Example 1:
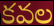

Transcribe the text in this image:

కవల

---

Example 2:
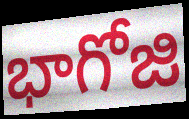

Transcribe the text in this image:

భాగోజి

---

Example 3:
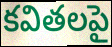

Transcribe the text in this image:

కవితలపై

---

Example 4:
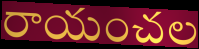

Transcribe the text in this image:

రాయంచల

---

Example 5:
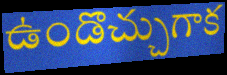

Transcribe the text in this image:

ఉండొచ్చుగాక